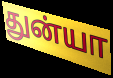
துன்யா